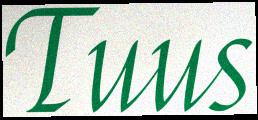
Tuus